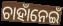
ଚାହାଁନେଇଁ